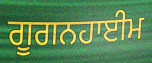
ਗੂਗਨਹਾਈਮ